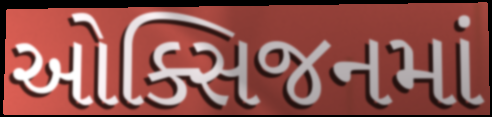
ઓક્સિજનમાં